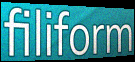
filiform